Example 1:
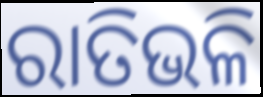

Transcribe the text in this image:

ରାତିଭଳି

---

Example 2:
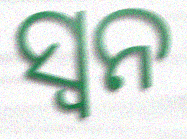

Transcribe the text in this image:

ସ୍ୱନ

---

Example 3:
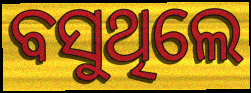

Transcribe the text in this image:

ବସୁଥିଲେ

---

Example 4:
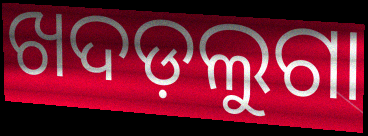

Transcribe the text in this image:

ଖଦଡ଼ଲୁଗା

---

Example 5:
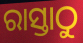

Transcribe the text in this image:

ରାସ୍ତାଠୁ